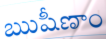
ఋషీణాం